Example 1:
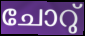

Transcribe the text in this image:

ചോറു്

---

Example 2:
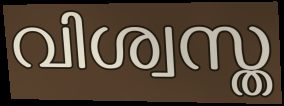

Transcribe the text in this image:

വിശ്വസ്ത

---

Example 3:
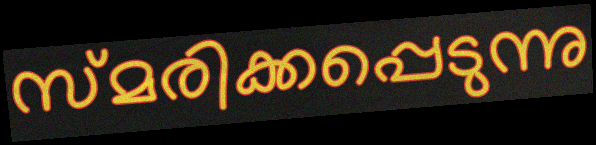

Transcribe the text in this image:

സ്മരിക്കപ്പെടുന്നു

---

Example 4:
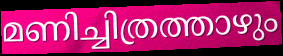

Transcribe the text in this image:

മണിച്ചിത്രത്താഴും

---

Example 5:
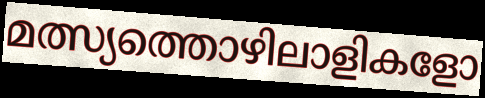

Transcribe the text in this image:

മത്സ്യത്തൊഴിലാളികളോ